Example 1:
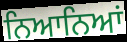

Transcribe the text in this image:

ਨਿਆਨਿਆਂ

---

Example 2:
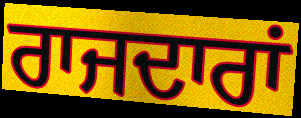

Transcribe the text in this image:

ਰਾਜਦਾਰਾਂ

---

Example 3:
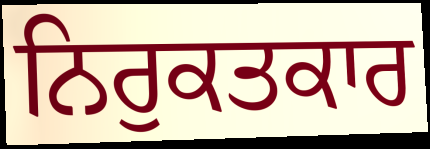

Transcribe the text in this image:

ਨਿਰੁਕਤਕਾਰ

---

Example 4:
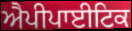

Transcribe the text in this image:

ਐਪੀਪਾਈਟਿਕ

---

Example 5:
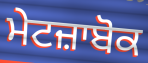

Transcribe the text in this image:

ਮੇਟਜ਼ਾਬੋਕ